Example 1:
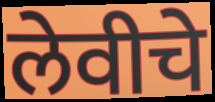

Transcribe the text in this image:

लेवीचे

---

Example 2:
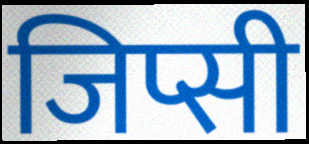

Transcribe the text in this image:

जिप्सी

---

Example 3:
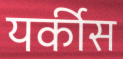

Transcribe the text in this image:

यर्कीस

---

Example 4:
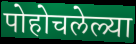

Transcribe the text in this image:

पोहोचलेल्या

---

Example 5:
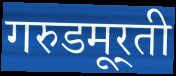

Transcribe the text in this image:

गरुडमूर्ती